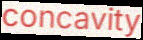
concavity